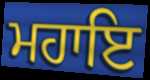
ਮਹਾਇ